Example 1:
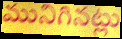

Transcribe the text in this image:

మునిగినట్లు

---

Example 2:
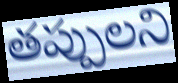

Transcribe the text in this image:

తప్పులని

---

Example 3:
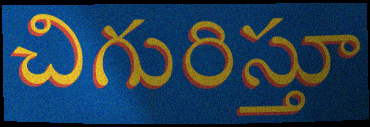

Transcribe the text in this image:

చిగురిస్తూ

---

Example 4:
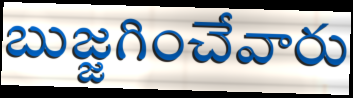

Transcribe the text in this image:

బుజ్జగించేవారు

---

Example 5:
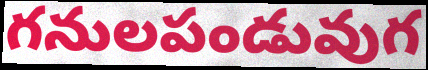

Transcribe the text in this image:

గనులపండువుగ